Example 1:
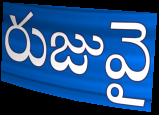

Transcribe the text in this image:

రుజువై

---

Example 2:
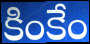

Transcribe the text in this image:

కింకేం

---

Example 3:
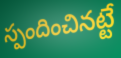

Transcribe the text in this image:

స్పందించినట్టే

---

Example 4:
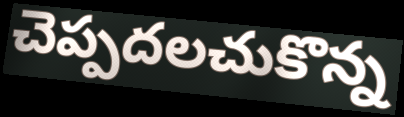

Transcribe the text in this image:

చెప్పదలచుకొన్న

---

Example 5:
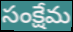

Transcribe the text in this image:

సంక్షేమ